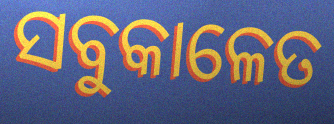
ସବୁକାଳେତ